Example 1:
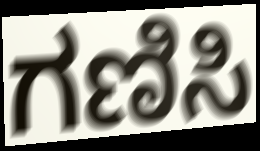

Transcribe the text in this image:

ಗಣಿಸಿ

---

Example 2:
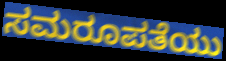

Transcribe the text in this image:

ಸಮರೂಪತೆಯು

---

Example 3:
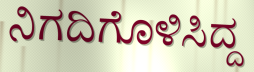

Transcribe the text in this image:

ನಿಗದಿಗೊಳಿಸಿದ್ದ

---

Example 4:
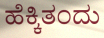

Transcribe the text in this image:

ಹೆಕ್ಕಿತಂದು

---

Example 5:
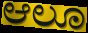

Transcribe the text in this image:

ಆಲೂ